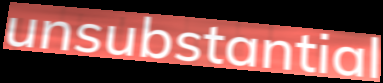
unsubstantial